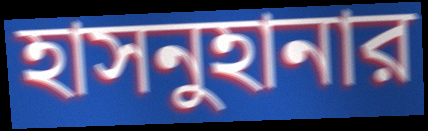
হাসনুহানার